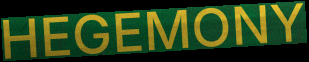
HEGEMONY